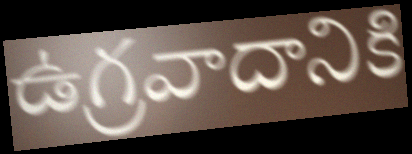
ఉగ్రవాదానికి